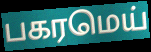
பகரமெய்